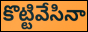
కొట్టివేసినా